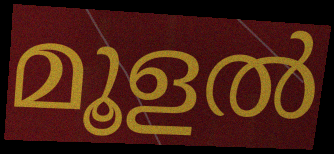
മൂളൽ